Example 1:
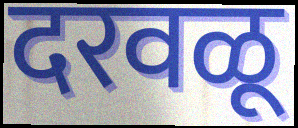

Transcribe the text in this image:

दरवळू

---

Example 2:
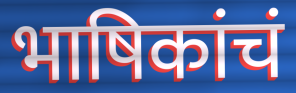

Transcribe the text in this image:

भाषिकांचं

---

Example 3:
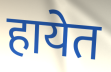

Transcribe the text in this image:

हायेत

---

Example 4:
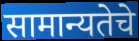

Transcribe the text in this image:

सामान्यतेचे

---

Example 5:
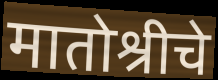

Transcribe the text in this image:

मातोश्रीचे